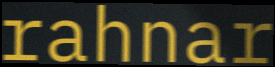
rahnar